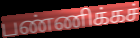
பண்ணிக்கச்